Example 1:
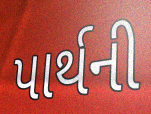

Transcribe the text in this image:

પાર્થની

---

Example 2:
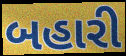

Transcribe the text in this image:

બહારી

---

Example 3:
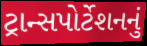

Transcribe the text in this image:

ટ્રાન્સપોર્ટેશનનું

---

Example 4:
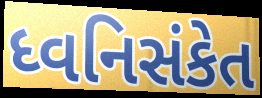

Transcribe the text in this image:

ધ્વનિસંકેત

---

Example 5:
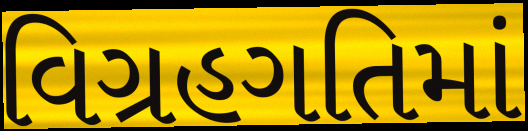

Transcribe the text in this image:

વિગ્રહગતિમાં